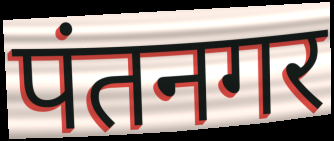
पंतनगर